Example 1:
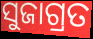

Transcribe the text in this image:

ସୁଜାଗ୍ରତ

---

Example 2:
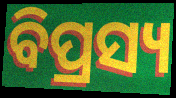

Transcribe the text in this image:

ବିପ୍ରସ୍ୟ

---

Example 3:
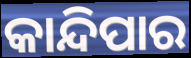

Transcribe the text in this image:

କାନ୍ଦିପାର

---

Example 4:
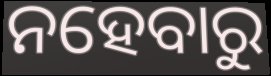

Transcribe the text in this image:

ନହେବାରୁ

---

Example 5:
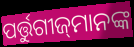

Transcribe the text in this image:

ପର୍ତ୍ତୁଗୀଜ୍‌ମାନଙ୍କ